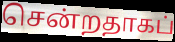
சென்றதாகப்